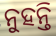
ନୁହନ୍ତି